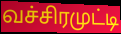
வச்சிரமுட்டி